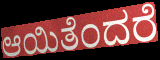
ಆಯಿತೆಂದರೆ